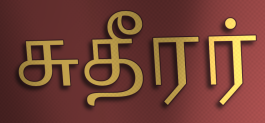
சுதீரர்